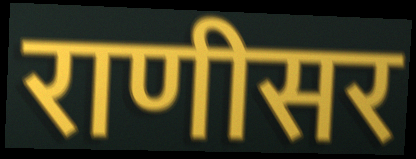
राणीसर